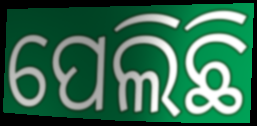
ପେଲିଛି